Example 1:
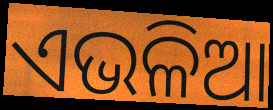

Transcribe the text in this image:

ଏଭଳିଆ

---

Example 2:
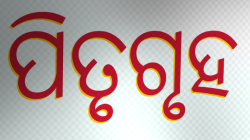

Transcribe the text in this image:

ପିତୃଗୃହ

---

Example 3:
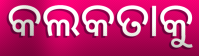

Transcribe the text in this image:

କଲକତାକୁ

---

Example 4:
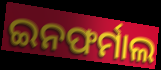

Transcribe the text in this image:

ଇନଫର୍ମାଲ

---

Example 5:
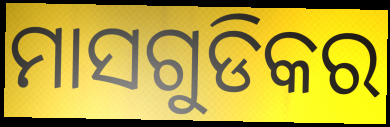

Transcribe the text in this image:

ମାସଗୁଡିକର